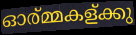
ഓര്മ്മകള്ക്കു